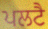
ਪਲਟੈ